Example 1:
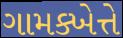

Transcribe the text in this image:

ગામક્ખેત્તે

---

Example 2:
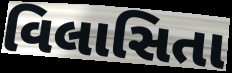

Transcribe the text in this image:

વિલાસિતા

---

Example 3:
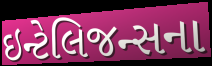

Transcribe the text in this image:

ઇન્ટેલિજન્સના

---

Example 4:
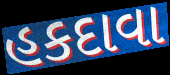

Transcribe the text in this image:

હકદાવા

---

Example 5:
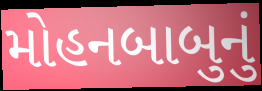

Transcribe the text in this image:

મોહનબાબુનું